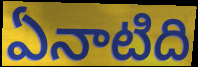
ఏనాటిది